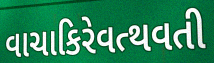
વાચાકિરેવત્થવતી